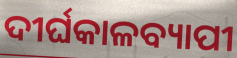
ଦୀର୍ଘକାଳବ୍ୟାପୀ